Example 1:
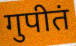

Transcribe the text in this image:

गुपीतं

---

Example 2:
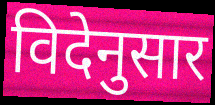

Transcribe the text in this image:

विदेनुसार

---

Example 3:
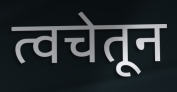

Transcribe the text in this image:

त्वचेतून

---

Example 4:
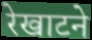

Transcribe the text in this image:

रेखाटने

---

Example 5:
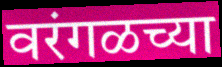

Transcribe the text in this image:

वरंगळच्या